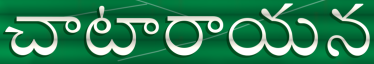
చాటారాయన